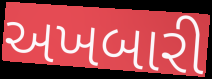
અખબારી